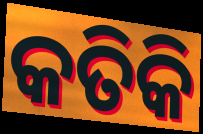
କତିକି